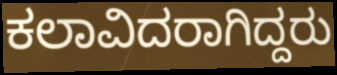
ಕಲಾವಿದರಾಗಿದ್ದರು